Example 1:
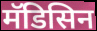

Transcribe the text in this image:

मॅडिसिन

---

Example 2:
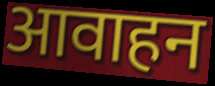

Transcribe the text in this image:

आवाहन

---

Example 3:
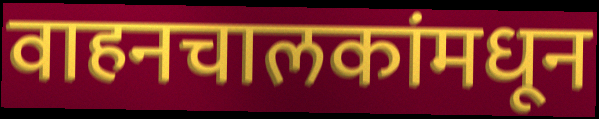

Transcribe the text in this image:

वाहनचालकांमधून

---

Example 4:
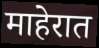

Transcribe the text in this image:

माहेरात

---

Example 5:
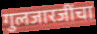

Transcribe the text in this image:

गुलजारजींचा